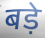
बड़े